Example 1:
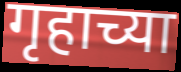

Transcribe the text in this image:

गृहाच्या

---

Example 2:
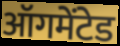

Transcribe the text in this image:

ऑगमेंटेड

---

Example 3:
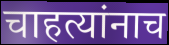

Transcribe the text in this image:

चाहत्यांनाच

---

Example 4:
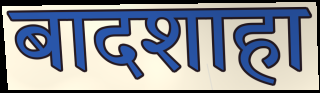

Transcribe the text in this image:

बादशाहा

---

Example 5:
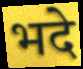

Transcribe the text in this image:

भदे